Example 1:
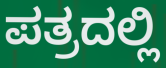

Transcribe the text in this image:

ಪತ್ರದಲ್ಲಿ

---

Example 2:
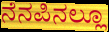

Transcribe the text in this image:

ನೆನಪಿನಲ್ಲೂ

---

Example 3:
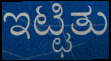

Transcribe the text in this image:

ಇಟ್ಟಿತು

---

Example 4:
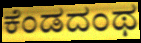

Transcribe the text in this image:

ಕೆಂಡದಂಥ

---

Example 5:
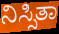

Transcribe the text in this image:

ನಿಸ್ಸಿತಾ